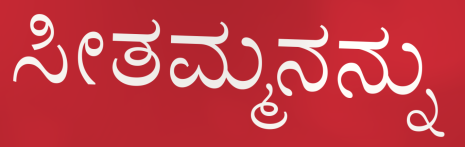
ಸೀತಮ್ಮನನ್ನು